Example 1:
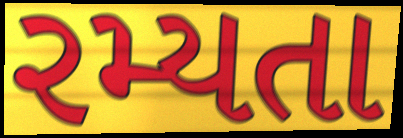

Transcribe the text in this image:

રમ્યતા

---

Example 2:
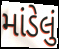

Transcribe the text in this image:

માંડેલું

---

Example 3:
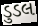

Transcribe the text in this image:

ડુડલ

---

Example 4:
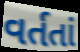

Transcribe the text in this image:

વર્તતાં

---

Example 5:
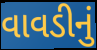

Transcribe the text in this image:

વાવડીનું